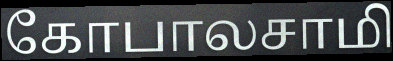
கோபாலசாமி